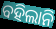
ବହିଲାନି